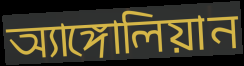
অ্যাঙ্গোলিয়ান